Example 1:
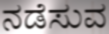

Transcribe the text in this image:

ನಡೆಸುವ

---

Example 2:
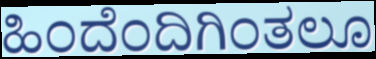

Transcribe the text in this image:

ಹಿಂದೆಂದಿಗಿಂತಲೂ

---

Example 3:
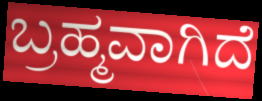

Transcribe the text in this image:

ಬ್ರಹ್ಮವಾಗಿದೆ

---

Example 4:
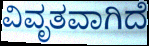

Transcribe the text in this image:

ವಿವೃತವಾಗಿದೆ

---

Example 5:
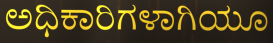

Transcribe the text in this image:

ಅಧಿಕಾರಿಗಳಾಗಿಯೂ